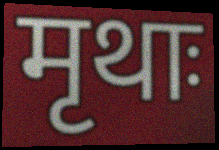
मृथाः